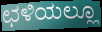
ಛಳಿಯಲ್ಲೂ